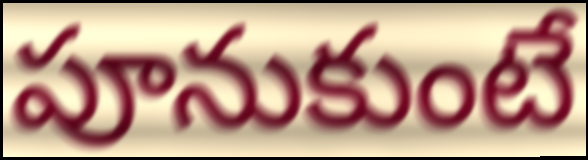
పూనుకుంటే